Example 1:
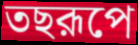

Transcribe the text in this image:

তছরূপে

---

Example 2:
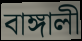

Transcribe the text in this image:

বাঙ্গালী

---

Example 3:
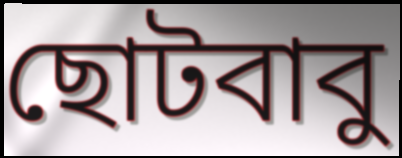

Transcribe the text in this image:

ছোটবাবু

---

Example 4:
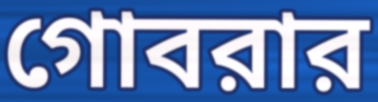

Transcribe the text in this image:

গোবরার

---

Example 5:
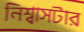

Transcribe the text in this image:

নিশ্বাসটার